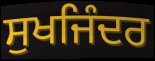
ਸੁਖਜਿੰਦਰ